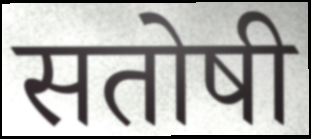
सतोषी